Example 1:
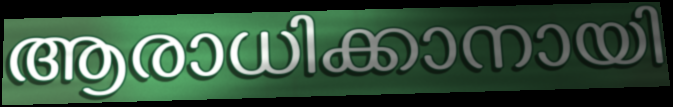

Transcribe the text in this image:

ആരാധിക്കാനായി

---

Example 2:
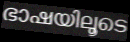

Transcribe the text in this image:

ഭാഷയിലൂടെ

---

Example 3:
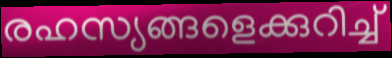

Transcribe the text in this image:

രഹസ്യങ്ങളെക്കുറിച്ച്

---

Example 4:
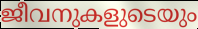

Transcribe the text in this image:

ജീവനുകളുടെയും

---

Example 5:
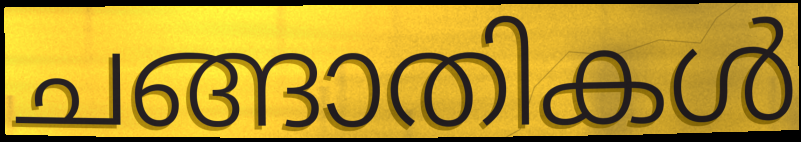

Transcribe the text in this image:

ചങ്ങാതികൾ